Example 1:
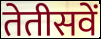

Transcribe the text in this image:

तेतीसवें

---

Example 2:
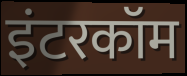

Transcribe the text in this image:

इंटरकॉम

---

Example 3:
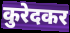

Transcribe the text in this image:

कुरेदकर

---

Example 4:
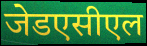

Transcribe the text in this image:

जेडएसीएल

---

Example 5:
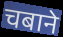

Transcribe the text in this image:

चबाने